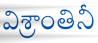
విశ్రాంతినీ